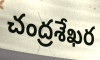
చంద్రశేఖర